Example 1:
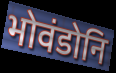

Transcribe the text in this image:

भोवंडोनि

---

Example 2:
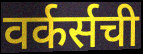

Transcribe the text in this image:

वर्कर्सची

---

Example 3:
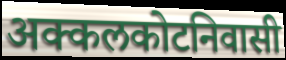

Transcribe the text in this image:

अक्कलकोटनिवासी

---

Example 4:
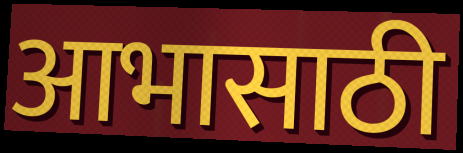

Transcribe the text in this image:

आभासाठी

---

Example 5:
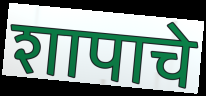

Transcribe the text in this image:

शापाचे